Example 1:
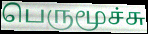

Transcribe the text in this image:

பெருமூச்சு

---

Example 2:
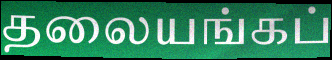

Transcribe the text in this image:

தலையங்கப்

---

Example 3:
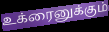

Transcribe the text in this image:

உக்ரைனுக்கும்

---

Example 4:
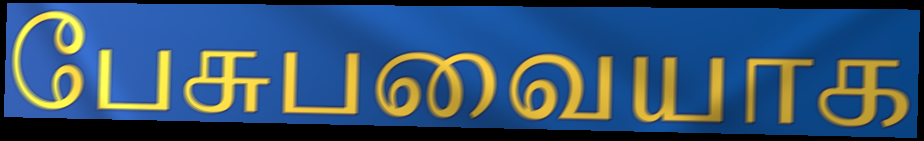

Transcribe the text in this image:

பேசுபவையாக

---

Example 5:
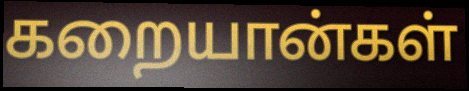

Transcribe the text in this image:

கறையான்கள்